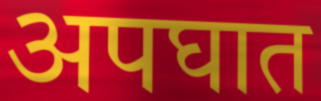
अपघात